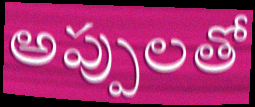
అప్పులతో